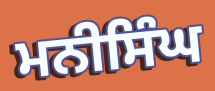
ਮਨੀਸਿੰਘ